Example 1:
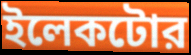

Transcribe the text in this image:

ইলেকটোর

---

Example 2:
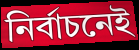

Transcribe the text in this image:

নির্বাচনেই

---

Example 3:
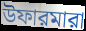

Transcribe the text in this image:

উফারমারা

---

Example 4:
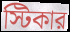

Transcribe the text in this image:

স্টিকার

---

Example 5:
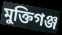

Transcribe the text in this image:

মুক্তিগঞ্জ